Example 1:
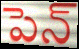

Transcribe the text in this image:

పెన్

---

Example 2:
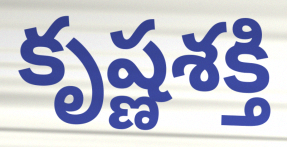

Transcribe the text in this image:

కృష్ణశక్తి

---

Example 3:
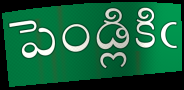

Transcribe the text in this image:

పెండ్లికిఁ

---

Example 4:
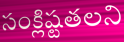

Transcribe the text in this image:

సంక్లిష్టతలని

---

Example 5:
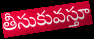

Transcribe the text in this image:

తీసుకువస్తూ